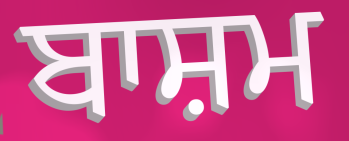
ਬਾਸ਼ਮ